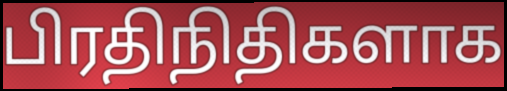
பிரதிநிதிகளாக